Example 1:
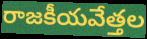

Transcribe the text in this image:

రాజకీయవేత్తల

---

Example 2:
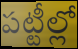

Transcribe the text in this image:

పట్టీల్లో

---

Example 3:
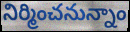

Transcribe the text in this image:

నిర్మించనున్నాం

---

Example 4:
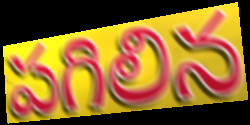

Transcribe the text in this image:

పగిలిన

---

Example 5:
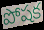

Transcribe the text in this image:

పోషక